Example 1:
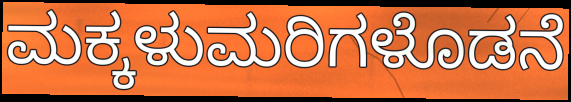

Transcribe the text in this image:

ಮಕ್ಕಳುಮರಿಗಳೊಡನೆ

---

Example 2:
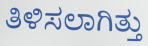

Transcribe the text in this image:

ತಿಳಿಸಲಾಗಿತ್ತು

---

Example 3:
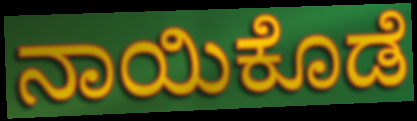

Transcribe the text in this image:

ನಾಯಿಕೊಡೆ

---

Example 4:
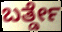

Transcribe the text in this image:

ಬರ್ತ್ಡೇ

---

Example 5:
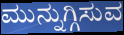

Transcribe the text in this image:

ಮುನ್ನುಗ್ಗಿಸುವ